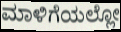
ಮಾಳಿಗೆಯಲ್ಲೋ